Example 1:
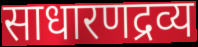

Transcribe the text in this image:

साधारणद्रव्य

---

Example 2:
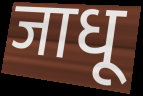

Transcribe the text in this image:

जाधू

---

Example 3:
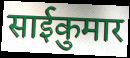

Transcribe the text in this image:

साईकुमार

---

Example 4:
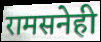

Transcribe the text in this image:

रामसनेही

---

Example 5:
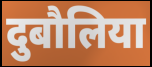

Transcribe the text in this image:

दुबौलिया